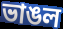
ভাঙল